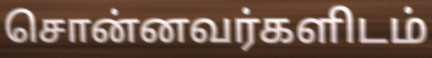
சொன்னவர்களிடம்